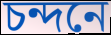
চন্দনে